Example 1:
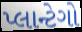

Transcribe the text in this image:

પ્લાન્ટેગો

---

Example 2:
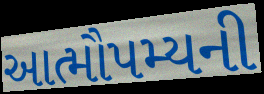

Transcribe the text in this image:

આત્મૌપમ્યની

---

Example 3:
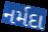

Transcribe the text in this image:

નર્મદા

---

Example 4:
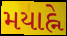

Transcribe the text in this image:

મયાહ્ને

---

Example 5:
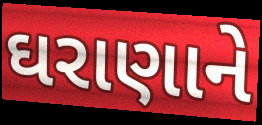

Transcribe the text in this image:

ઘરાણાને